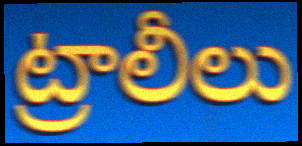
ట్రాలీలు